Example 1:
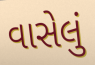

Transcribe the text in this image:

વાસેલું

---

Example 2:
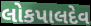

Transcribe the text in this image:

લોકપાલદેવ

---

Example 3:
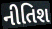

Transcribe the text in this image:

નીતિશ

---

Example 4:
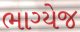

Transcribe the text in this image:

ભાગ્યેજ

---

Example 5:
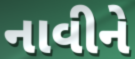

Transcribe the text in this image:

નાવીને